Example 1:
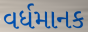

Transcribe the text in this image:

વર્ધમાનક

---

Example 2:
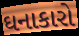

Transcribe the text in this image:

ઘનાકારો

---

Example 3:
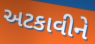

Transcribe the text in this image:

અટકાવીને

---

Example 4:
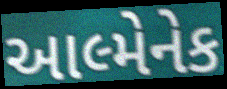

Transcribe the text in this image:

આલ્મેનેક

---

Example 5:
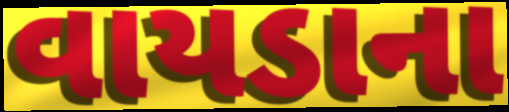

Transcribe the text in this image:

વાયડાના